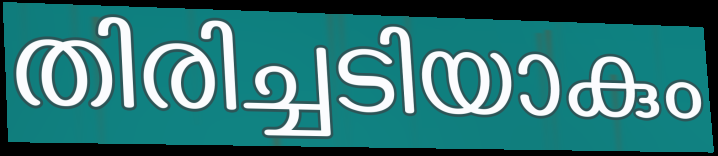
തിരിച്ചടിയാകും